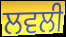
ਲਵਲੀ